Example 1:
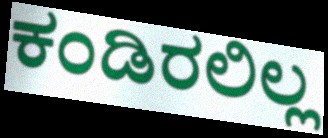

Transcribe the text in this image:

ಕಂಡಿರಲಿಲ್ಲ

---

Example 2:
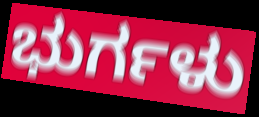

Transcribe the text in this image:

ಭುರ್ಗಳು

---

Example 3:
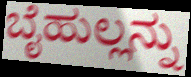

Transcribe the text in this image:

ಬೈಹುಲ್ಲನ್ನು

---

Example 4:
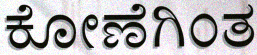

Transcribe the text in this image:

ಕೋಣೆಗಿಂತ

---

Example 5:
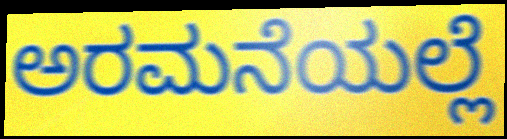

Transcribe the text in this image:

ಅರಮನೆಯಲ್ಲೆ